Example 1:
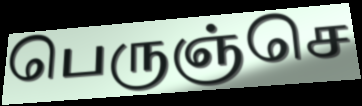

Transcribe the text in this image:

பெருஞ்செ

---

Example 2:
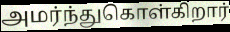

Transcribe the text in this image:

அமர்ந்துகொள்கிறார்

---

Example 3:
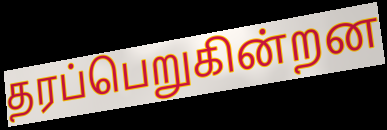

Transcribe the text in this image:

தரப்பெறுகின்றன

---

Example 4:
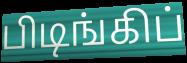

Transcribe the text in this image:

பிடிங்கிப்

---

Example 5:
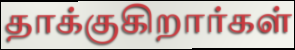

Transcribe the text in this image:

தாக்குகிறார்கள்